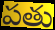
పతు